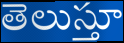
తెలుస్తూ